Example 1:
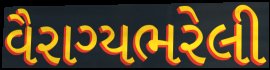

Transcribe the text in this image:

વૈરાગ્યભરેલી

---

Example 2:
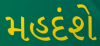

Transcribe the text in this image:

મહદંશે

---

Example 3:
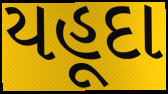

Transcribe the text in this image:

યહૂદા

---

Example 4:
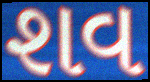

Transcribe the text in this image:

શવ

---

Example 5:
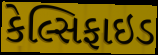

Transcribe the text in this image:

કેલ્સિફાઇડ